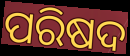
ପରିଷଦ